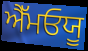
ਐੱਮਓਯੂ